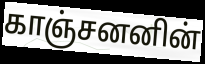
காஞ்சனனின்